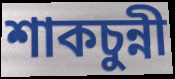
শাকচুন্নী